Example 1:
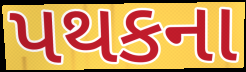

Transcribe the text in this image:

પથકના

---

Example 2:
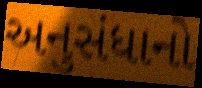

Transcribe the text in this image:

અનુસંધાનો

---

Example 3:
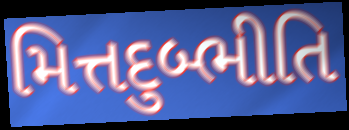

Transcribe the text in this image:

મિત્તદુબ્ભીતિ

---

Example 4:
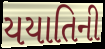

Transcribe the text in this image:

યયાતિની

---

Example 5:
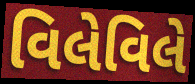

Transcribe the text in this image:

વિલેવિલે